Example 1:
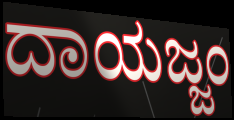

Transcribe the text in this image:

ದಾಯಜ್ಜಂ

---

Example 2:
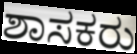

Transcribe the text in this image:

ಶಾಸಕರು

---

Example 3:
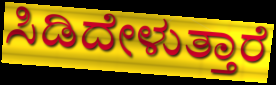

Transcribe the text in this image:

ಸಿಡಿದೇಳುತ್ತಾರೆ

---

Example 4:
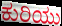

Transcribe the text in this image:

ಕುರಿಯು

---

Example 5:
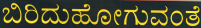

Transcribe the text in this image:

ಬಿರಿದುಹೋಗುವಂತೆ